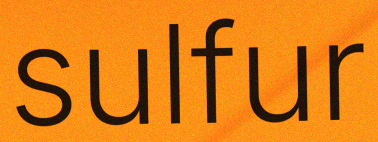
sulfur